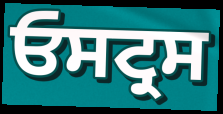
ਓਸਟ੍ਰਸ